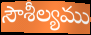
సౌశీల్యము